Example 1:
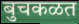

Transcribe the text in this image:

बुचकळत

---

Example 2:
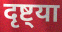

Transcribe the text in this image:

दृष्ट्या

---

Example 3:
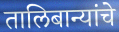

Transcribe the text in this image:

तालिबान्यांचे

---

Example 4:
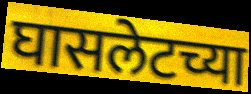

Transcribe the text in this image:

घासलेटच्या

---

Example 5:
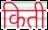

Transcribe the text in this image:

किती